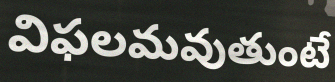
విఫలమవుతుంటే